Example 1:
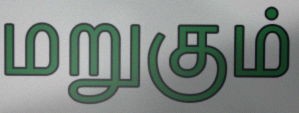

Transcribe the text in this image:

மறுகும்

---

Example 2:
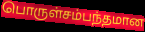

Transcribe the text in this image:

பொருள்சம்பந்தமான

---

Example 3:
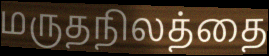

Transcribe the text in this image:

மருதநிலத்தை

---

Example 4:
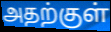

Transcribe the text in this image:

அதற்குள்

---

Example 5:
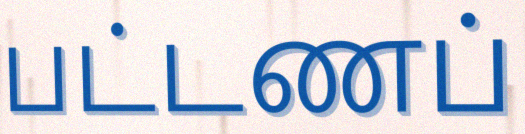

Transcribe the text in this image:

பட்டணப்